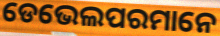
ଡେଭେଲପରମାନେ